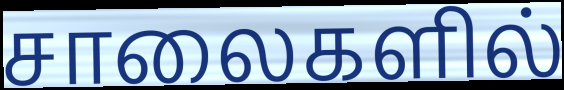
சாலைகளில்